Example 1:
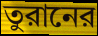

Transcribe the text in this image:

তুরানের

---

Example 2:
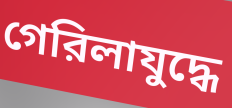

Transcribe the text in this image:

গেরিলাযুদ্ধে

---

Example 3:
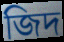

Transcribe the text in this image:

জিদ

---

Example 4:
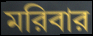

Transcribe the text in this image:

মরিবার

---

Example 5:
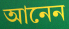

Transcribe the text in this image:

আনেন